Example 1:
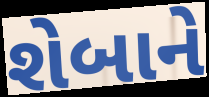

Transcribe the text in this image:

શેબાને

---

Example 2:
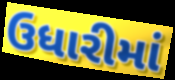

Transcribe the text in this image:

ઉધારીમાં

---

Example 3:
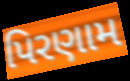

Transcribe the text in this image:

પિરણામ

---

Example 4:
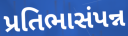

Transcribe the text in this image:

પ્રતિભાસંપન્ન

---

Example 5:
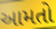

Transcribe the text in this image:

આમતો